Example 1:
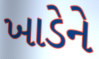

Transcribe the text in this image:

ખાડેને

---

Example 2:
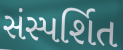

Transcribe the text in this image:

સંસ્પર્શિત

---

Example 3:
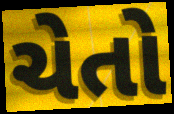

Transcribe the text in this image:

ચેતો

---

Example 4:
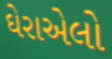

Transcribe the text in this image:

ઘેરાએલો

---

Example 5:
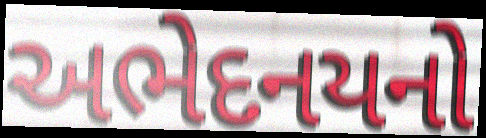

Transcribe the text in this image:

અભેદનયનો